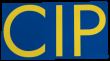
CIP